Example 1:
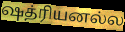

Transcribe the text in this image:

ஷத்ரியனல்ல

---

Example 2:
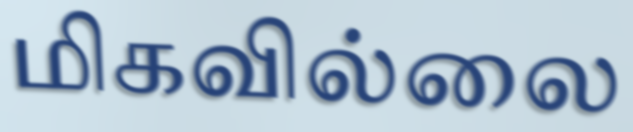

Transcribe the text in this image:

மிகவில்லை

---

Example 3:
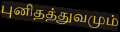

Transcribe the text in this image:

புனிதத்துவமும்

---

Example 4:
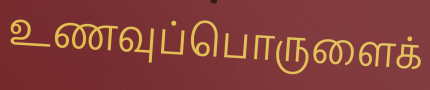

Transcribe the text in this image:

உணவுப்பொருளைக்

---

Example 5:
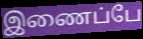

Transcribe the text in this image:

இணைப்பே